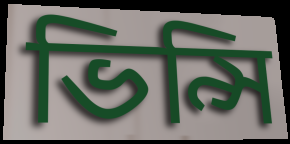
ভিন্সি